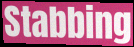
Stabbing